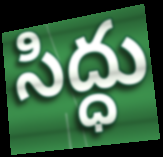
సిద్ధు